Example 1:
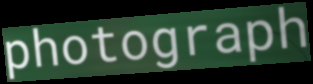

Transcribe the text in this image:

photograph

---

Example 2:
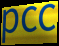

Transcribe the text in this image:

pcc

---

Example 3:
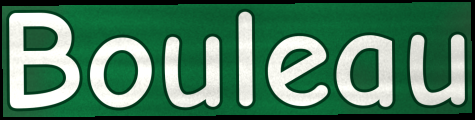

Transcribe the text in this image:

Bouleau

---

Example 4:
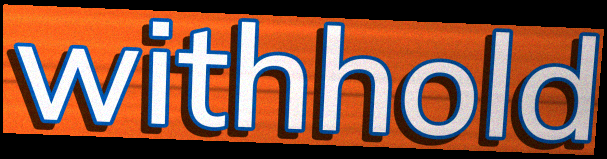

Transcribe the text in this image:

withhold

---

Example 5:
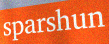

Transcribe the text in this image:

sparshun